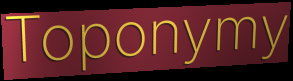
Toponymy